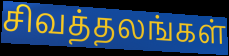
சிவத்தலங்கள்